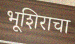
भूशिराचा